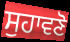
ਸੁਹਾਵਣੋ